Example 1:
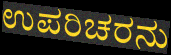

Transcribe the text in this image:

ಉಪರಿಚರನು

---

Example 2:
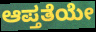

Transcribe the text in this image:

ಆಪ್ತತೆಯೇ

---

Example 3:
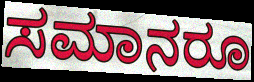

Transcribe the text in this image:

ಸಮಾನರೂ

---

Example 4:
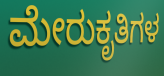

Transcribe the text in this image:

ಮೇರುಕೃತಿಗಳ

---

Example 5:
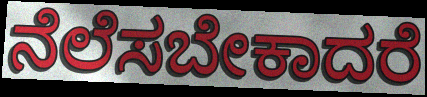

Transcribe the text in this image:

ನೆಲೆಸಬೇಕಾದರೆ